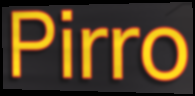
Pirro